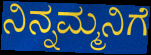
ನಿನ್ನಮ್ಮನಿಗೆ